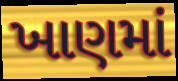
ખાણમાં